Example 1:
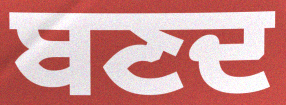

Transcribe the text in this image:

ਬਣਦ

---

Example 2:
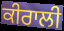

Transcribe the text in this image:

ਕੀਰਾਲੀ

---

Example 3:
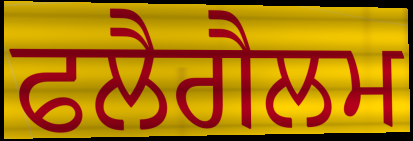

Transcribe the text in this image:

ਫਲੈਗੈਲਮ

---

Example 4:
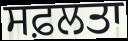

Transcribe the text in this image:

ਸਫ਼ਲਤਾ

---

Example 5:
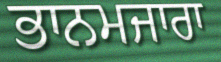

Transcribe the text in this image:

ਭਾਨਮਜਾਰਾ